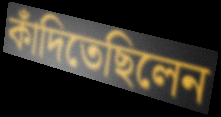
কাঁদিতেছিলেন